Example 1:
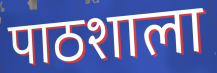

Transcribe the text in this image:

पाठशाला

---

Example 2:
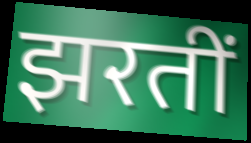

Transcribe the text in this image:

झरतीं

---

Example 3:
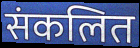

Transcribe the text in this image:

संकलित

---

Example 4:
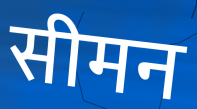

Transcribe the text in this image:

सीमन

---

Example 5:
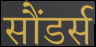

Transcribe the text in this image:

सौंडर्स